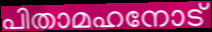
പിതാമഹനോട്